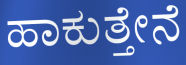
ಹಾಕುತ್ತೇನೆ